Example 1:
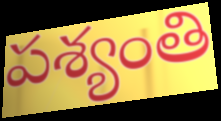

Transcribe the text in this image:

పశ్యంతి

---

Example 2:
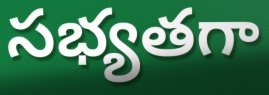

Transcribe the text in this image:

సభ్యతగా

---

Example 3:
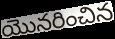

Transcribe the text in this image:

యొనరించిన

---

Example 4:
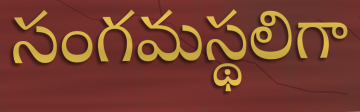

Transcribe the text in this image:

సంగమస్థలిగా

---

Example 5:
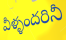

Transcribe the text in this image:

వీళ్ళందరినీ